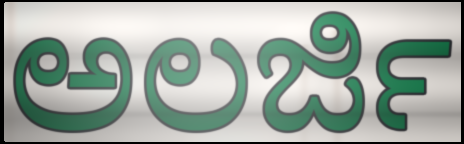
ಅಲರ್ಜಿ